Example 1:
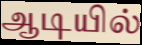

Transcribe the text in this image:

ஆடியில்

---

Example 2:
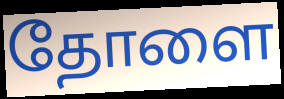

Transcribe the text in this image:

தோளை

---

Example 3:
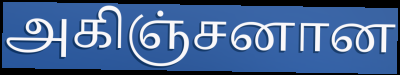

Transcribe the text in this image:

அகிஞ்சனான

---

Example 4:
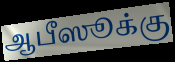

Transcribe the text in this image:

ஆபீஸூக்கு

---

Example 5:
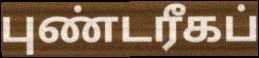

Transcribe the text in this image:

புண்டரீகப்